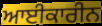
ਆਈਕਾਰੀਨ